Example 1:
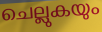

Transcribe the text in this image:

ചെല്ലുകയും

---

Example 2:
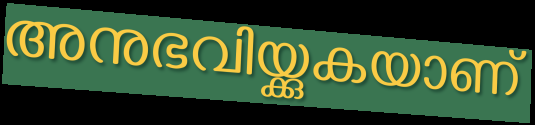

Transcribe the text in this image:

അനുഭവിയ്ക്കുകയാണ്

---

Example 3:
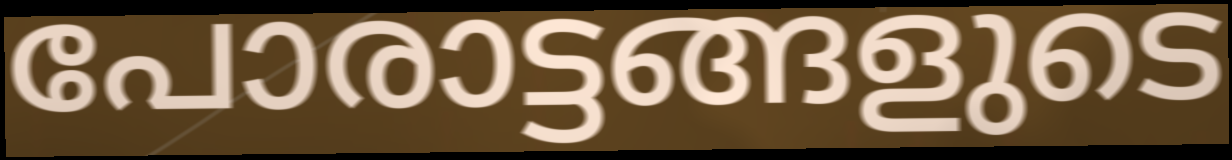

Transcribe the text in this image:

പോരാട്ടങ്ങളുടെ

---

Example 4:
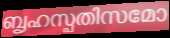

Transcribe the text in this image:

ബൃഹസ്പതിസമോ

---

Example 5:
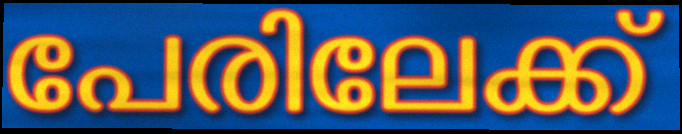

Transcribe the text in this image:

പേരിലേക്ക്